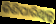
କିଣିପାରିଥିଲୁ